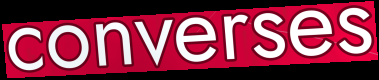
converses